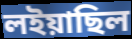
লইয়াছিল